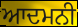
ਆਦਮਨੀ